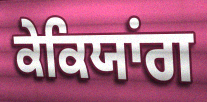
ਕੇਕਿਯਾਂਗ